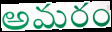
అమరం